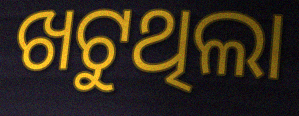
ଖଟୁଥିଲା